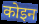
कोइन